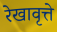
रेखावृत्ते